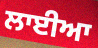
ਲਾਈਆ